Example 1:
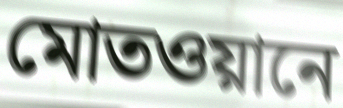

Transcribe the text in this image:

মোতওয়ানে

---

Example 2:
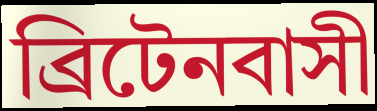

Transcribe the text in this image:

ব্রিটেনবাসী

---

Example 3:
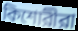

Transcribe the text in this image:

কিশোরীরা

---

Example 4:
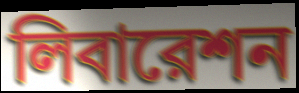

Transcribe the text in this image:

লিবারেশন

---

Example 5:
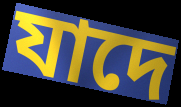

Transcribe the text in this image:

যাদে